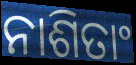
ନାଶିତାଂ